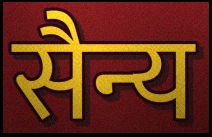
सैन्‍य